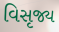
વિસૃજ્ય